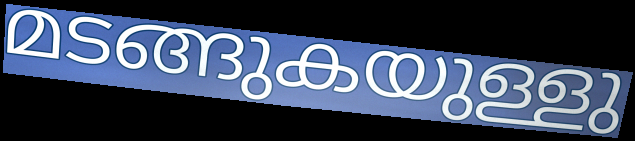
മടങ്ങുകയുള്ളു